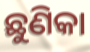
ଛୁଣିକା